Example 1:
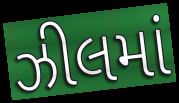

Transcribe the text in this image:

ઝીલમાં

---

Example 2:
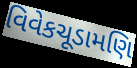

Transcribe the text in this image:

વિવેકચૂડામણિ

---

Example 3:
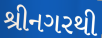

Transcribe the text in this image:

શ્રીનગરથી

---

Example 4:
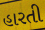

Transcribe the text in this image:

હારતી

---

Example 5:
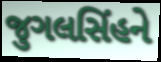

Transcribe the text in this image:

જુગલસિંહને